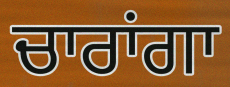
ਚਾਰਾਂਗਾ